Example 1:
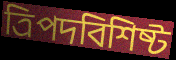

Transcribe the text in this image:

ত্রিপদবিশিষ্ট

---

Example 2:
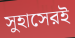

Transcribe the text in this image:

সুহাসেরই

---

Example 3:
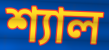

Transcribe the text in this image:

শ্যাল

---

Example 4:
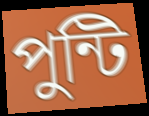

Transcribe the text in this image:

পুন্টি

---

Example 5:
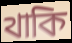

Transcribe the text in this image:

থাকি